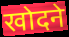
खोदने